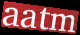
aatm